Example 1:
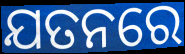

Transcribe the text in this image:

ଯତନରେ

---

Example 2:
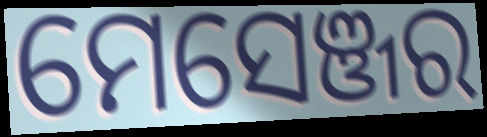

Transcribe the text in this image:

ମେସେଞ୍ଜର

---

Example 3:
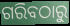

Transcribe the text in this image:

ଗରିବଠାରୁ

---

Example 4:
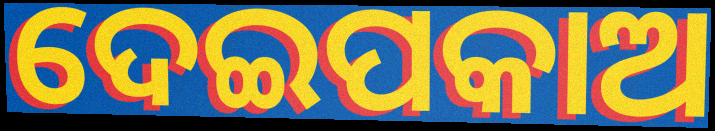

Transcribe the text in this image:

ଦେଇପକାଅ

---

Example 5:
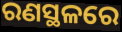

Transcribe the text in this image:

ରଣସ୍ଥଳରେ